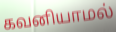
கவனியாமல்